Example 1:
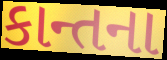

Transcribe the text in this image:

કાન્તના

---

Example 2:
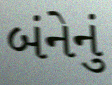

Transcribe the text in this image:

બંનેનું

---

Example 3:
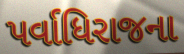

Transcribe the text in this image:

પર્વાધિરાજના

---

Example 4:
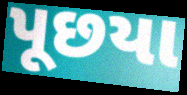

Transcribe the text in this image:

પૂછયા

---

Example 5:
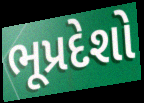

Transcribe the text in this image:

ભૂપ્રદેશો